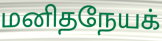
மனிதநேயக்